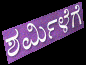
ಶರ್ಮಿಳೆಗೆ